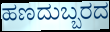
ಹಣದುಬ್ಬರದ